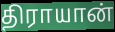
திராயான்